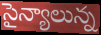
సైన్యాలున్న